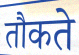
तौकते